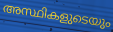
അസ്ഥികളുടെയും